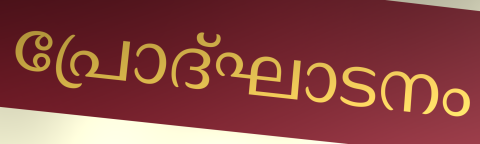
പ്രോദ്ഘാടനം